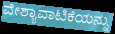
ವೇಶ್ಯಾವಾಟಿಕೆಯನ್ನು